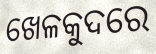
ଖେଳକୁଦରେ